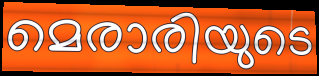
മെരാരിയുടെ